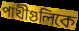
পাখীগুলিকে